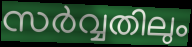
സർവ്വതിലും